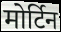
मोर्टिन